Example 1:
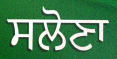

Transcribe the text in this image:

ਸਲੋਣਾ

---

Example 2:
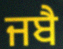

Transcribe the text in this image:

ਜਬੈ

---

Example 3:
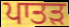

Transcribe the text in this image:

ਪਾਤੜ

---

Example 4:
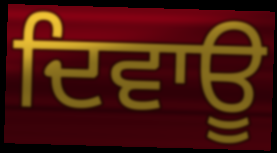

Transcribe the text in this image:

ਦਿਵਾਊ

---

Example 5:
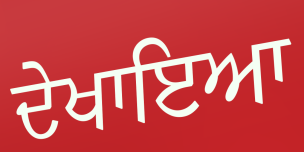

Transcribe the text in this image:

ਦੇਖਾਇਆ